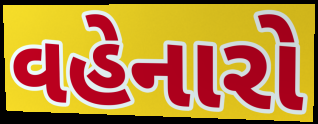
વહેનારો